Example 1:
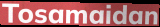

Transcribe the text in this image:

Tosamaidan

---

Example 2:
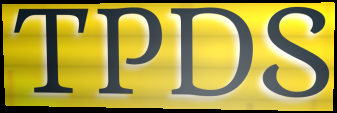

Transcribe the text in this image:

TPDS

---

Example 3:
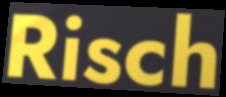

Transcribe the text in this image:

Risch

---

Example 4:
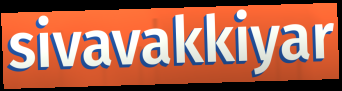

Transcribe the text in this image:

sivavakkiyar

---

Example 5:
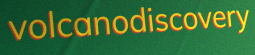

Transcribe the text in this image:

volcanodiscovery